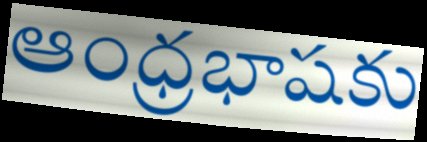
ఆంధ్రభాషకు